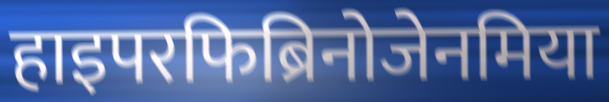
हाइपरफिब्रिनोजेनमिया